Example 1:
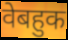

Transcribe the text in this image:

वेबहुक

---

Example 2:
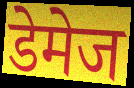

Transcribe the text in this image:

डेमेज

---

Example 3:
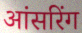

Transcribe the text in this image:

आंसरिंग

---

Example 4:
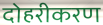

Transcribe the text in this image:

दोहरीकरण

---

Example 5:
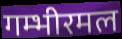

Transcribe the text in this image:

गम्भीरमल